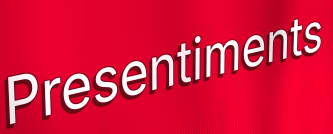
Presentiments